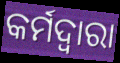
କର୍ମଦ୍ବାରା